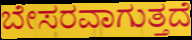
ಬೇಸರವಾಗುತ್ತದೆ